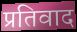
प्रतिवाद